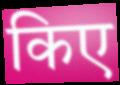
किए